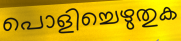
പൊളിച്ചെഴുതുക